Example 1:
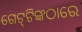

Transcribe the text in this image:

ଗେଟ୍‌ଟିଙ୍କଠାରେ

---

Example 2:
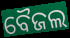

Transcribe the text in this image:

ବୈଜଲ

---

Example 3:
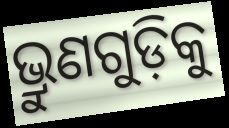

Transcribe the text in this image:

ଭ୍ରୁଣଗୁଡ଼ିକୁ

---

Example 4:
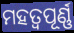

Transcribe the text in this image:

ମହତ୍ବପୂର୍ଣ୍ଣ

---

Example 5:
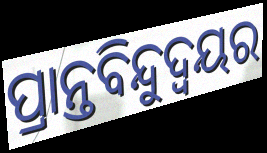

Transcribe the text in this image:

ପ୍ରାନ୍ତବିନ୍ଦୁଦ୍ଵୟର